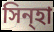
সিন্হা